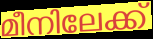
മീനിലേക്ക്